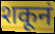
शकूनं